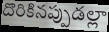
దొరికినప్పుడల్లా